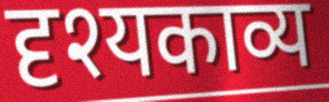
दृश्यकाव्य